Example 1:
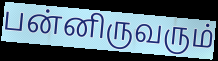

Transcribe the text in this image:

பன்னிருவரும்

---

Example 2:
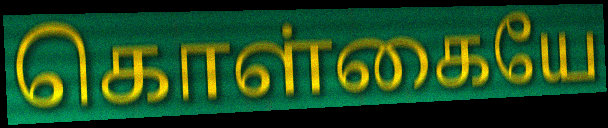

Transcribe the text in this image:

கொள்கையே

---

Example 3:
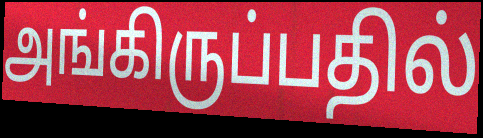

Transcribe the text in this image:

அங்கிருப்பதில்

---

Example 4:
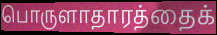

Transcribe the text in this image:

பொருளாதாரத்தைக்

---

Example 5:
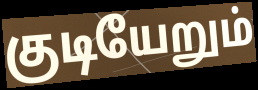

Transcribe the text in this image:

குடியேறும்